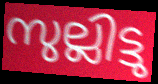
സുല്ലിട്ടു